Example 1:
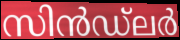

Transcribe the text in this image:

സിൻഡ്ലർ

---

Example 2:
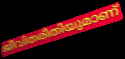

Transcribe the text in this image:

ജീവിതരീതിയുമാണ്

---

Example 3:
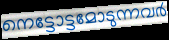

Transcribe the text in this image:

നെട്ടോട്ടമോടുന്നവർ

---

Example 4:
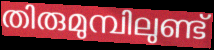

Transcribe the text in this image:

തിരുമുമ്പിലുണ്ട്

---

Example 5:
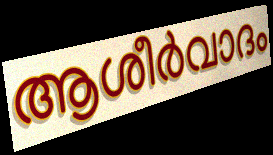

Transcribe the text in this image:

ആശീർവാദം